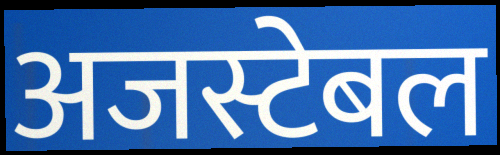
अजस्टेबल